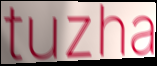
tuzha